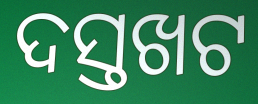
ଦସ୍ତଖଟ